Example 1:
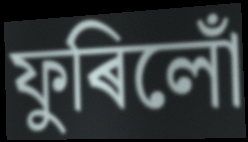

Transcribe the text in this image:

ফুৰিলোঁ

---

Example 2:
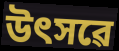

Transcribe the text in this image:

উৎসৱে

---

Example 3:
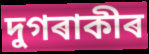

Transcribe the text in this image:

দুগৰাকীৰ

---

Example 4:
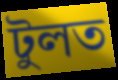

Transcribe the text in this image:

টুলত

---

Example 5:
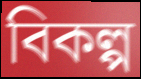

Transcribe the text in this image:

বিকল্প